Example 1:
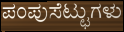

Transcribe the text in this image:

ಪಂಪುಸೆಟ್ಟುಗಳು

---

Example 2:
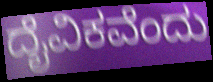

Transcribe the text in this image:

ದೈವಿಕವೆಂದು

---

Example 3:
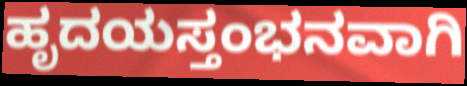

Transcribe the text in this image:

ಹೃದಯಸ್ತಂಭನವಾಗಿ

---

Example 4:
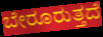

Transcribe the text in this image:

ಬೇರೂರುತ್ತದೆ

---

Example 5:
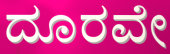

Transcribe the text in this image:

ದೂರವೇ